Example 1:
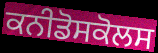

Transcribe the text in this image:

ਕਨੀਡੋਸਕੋਲਸ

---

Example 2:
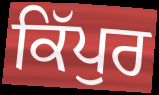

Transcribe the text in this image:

ਕਿੱਪੁਰ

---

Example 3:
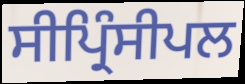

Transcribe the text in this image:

ਸੀਪ੍ਰਿੰਸੀਪਲ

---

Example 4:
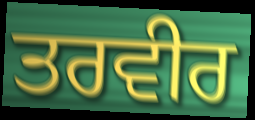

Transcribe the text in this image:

ਤਰਵੀਰ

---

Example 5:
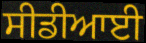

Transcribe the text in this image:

ਸੀਡੀਆਈ